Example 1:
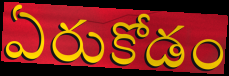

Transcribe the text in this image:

ఏరుకోడం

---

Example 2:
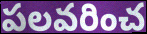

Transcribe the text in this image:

పలవరించ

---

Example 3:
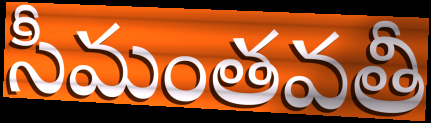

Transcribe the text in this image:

సీమంతవతీ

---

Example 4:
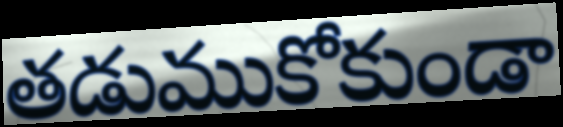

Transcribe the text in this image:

తడుముకోకుండా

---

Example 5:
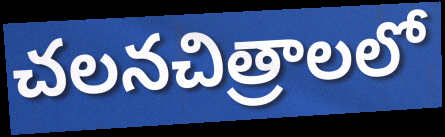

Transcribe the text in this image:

చలనచిత్రాలలో